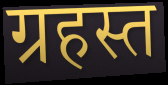
ग्रहस्त